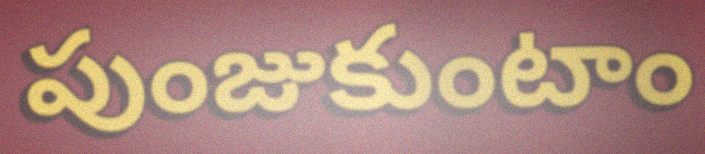
పుంజుకుంటాం